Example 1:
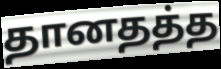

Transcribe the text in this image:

தானதத்த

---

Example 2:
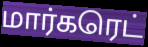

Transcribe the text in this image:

மார்கரெட்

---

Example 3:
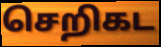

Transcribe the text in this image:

செறிகட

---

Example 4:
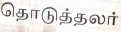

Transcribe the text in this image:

தொடுத்தலர்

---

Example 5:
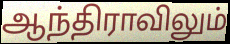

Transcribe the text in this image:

ஆந்திராவிலும்